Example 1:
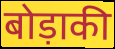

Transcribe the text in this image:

बोड़ाकी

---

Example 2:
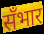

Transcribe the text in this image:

सँभार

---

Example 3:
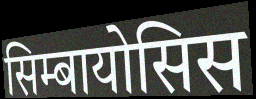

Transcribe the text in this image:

सिम्बायोसिस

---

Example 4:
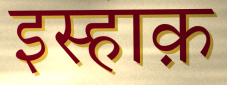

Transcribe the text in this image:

इस्हाक़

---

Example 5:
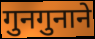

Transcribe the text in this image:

गुनगुनाने